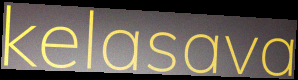
kelasava